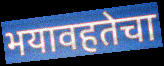
भयावहतेचा